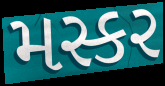
મસ્કર